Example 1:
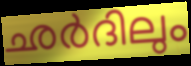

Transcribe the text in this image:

ഛർദിലും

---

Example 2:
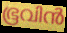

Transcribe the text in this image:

ഭൂവിൻ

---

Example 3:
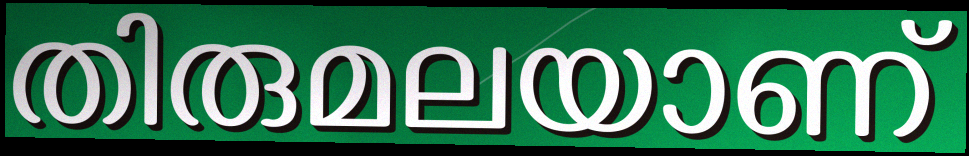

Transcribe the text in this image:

തിരുമലയാണ്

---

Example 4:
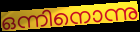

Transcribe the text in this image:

ഒന്നിനൊന്നു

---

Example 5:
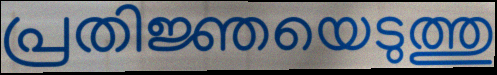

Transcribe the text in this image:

പ്രതിജ്ഞയെടുത്തു